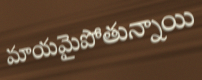
మాయమైపోతున్నాయి